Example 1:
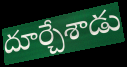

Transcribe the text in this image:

దూర్చేశాడు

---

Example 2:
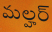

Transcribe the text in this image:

మల్హర్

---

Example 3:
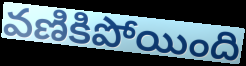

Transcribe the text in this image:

వణికిపోయింది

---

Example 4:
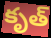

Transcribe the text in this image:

కృత్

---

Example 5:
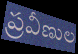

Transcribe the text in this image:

ప్రవీణుల